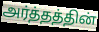
அர்த்தத்தின்